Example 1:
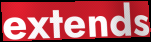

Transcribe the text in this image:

extends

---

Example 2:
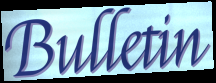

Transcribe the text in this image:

Bulletin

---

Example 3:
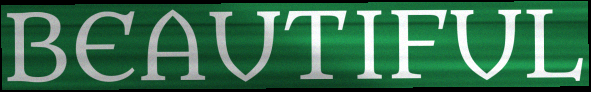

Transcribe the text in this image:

BEAUTIFUL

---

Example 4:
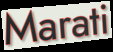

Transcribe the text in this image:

Marati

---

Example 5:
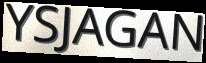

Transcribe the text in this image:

YSJAGAN